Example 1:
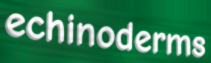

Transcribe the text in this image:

echinoderms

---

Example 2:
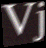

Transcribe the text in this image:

Vj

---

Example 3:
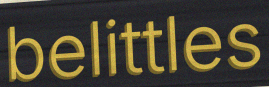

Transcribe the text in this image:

belittles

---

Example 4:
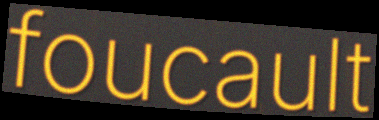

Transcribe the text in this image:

foucault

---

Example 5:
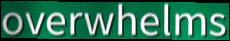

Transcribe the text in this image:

overwhelms